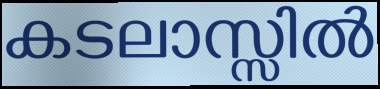
കടലാസ്സിൽ